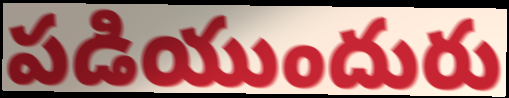
పడియుందురు